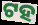
ଟହ